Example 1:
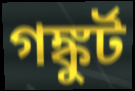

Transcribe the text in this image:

গঙ্কুর্ট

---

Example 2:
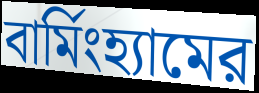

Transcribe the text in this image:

বার্মিংহ্যামের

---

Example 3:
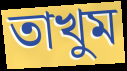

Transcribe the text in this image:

তাখুম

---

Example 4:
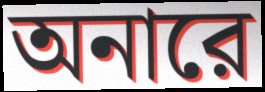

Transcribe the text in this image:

অনারে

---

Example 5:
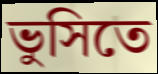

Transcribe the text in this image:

ভুসিতে